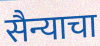
सैन्याचा